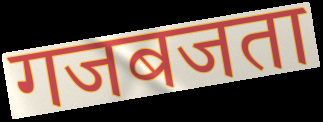
गजबजता